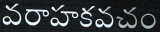
వరాహకవచం